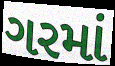
ગરમાં